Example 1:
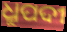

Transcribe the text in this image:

ଧ୍ରୁପଦୀ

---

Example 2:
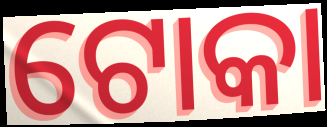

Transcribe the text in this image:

ଟୋକା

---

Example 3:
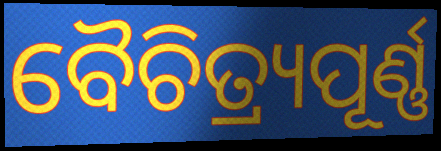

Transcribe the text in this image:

ବୈଚିତ୍ର୍ୟପୂର୍ଣ୍ଣ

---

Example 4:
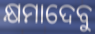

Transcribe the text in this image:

କ୍ଷମାଦେବୁ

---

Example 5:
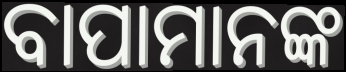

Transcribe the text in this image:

ବାପାମାନଙ୍କ